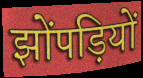
झोंपड़ियों